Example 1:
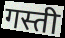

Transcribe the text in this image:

गस्ती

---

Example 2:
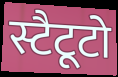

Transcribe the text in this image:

स्टैटूटो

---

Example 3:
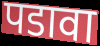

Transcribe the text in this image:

पडावा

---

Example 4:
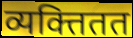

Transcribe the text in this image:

व्यक्तितत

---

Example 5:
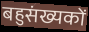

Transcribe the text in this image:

बहुसंख्यकों